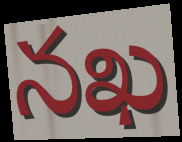
నఖ